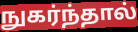
நுகர்ந்தால்